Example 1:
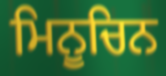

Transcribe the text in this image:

ਮਿਨੂਚਿਨ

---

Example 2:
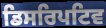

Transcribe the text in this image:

ਡਿਸਰਿਪਟਿਵ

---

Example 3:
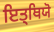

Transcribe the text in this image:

ਇਤ੍ਥਿਯੋ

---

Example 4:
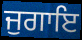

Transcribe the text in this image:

ਜੁਗਾਇ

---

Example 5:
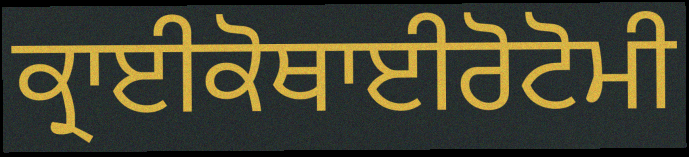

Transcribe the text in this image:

ਕ੍ਰਾਈਕੋਥਾਈਰੋਟੋਮੀ